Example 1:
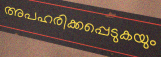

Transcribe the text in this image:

അപഹരിക്കപ്പെടുകയും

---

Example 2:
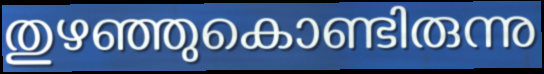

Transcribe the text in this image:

തുഴഞ്ഞുകൊണ്ടിരുന്നു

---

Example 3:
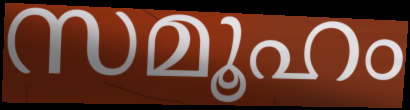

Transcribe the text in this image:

സമൂഹം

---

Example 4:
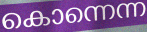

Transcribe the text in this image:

കൊന്നെന്ന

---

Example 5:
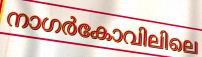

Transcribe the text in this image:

നാഗർകോവിലിലെ